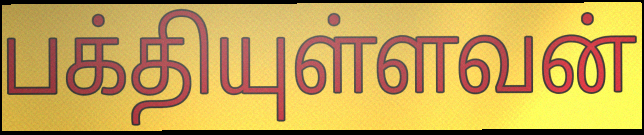
பக்தியுள்ளவன்